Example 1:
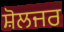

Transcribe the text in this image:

ਸ਼ੋਲਜਰ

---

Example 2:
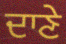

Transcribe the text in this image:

ਦਾਣੇ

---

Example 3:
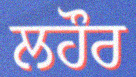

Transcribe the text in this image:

ਲਹੌਰ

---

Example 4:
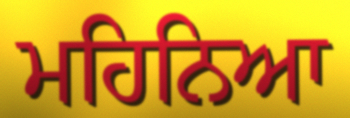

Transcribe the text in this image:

ਮਹਿਨਿਆ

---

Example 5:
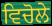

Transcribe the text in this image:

ਵਿਚੋਲੇ